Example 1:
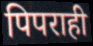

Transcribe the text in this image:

पिपराही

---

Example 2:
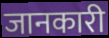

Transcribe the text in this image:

जानकारी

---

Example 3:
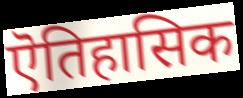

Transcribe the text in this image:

ऎतिहासिक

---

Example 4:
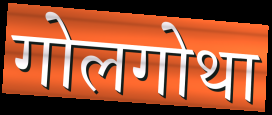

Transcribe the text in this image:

गोलगोथा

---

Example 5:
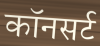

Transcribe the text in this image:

कॉनसर्ट